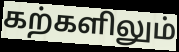
கற்களிலும்